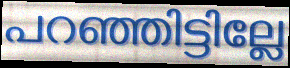
പറഞ്ഞിട്ടില്ലേ